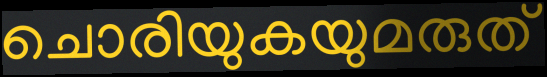
ചൊരിയുകയുമരുത്